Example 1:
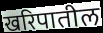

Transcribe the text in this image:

खरिपातील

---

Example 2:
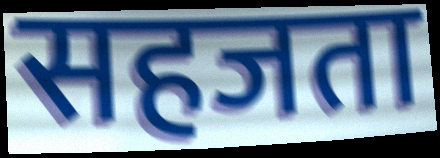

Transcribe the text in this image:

सहजता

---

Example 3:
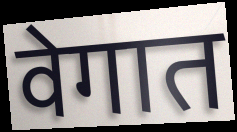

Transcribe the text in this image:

वेगात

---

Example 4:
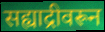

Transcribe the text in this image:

सह्याद्रीवरून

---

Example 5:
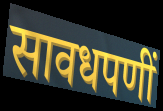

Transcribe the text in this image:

सावधपणीं